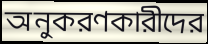
অনুকরণকারীদের